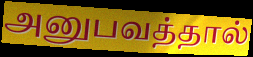
அனுபவத்தால்